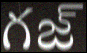
గజ్